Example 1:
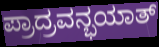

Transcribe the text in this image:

ಪ್ರಾದ್ರವನ್ಭಯಾತ್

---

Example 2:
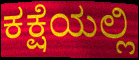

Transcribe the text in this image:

ಕಕ್ಷೆಯಲ್ಲಿ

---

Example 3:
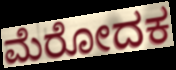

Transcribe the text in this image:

ಮೆರೋದಕ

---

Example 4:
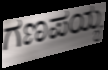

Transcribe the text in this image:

ಗಣಪಯ್ಯ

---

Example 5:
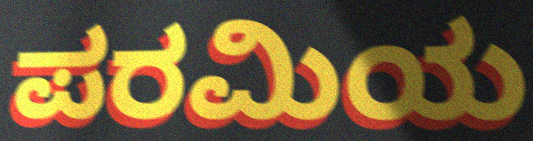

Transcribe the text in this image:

ಪರಮಿಯ